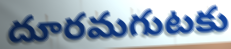
దూరమగుటకు